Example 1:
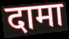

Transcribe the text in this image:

दामा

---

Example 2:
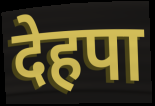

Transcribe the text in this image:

देहपा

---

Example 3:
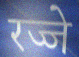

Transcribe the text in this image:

रज्जे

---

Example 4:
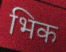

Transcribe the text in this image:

भिक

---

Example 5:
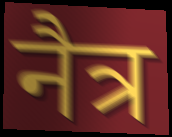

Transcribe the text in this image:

नैत्र